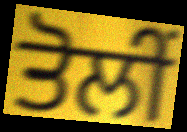
ਤੋਲੀਂ